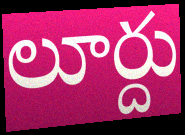
లూర్దు